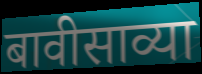
बावीसाव्या